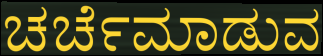
ಚರ್ಚೆಮಾಡುವ